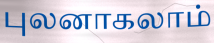
புலனாகலாம்